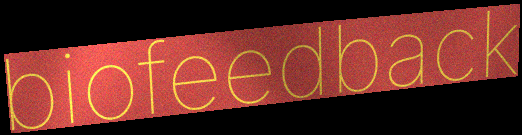
biofeedback